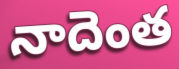
నాదెంత